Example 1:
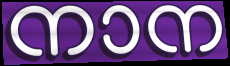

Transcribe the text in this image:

നാന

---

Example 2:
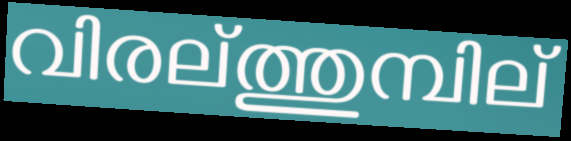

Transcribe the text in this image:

വിരല്ത്തുമ്പില്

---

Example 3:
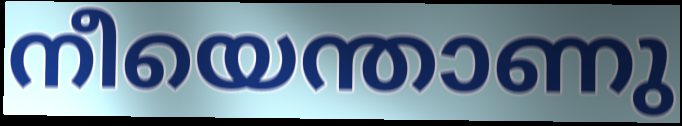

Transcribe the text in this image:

നീയെന്താണു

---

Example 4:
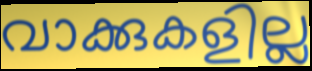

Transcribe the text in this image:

വാക്കുകളില്ല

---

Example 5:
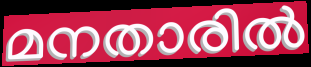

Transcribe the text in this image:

മനതാരിൽ